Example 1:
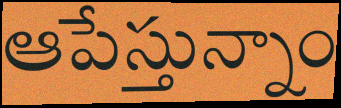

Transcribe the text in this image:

ఆపేస్తున్నాం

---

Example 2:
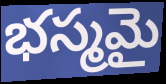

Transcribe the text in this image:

భస్మమై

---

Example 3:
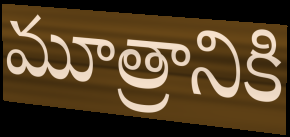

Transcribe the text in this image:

మూత్రానికి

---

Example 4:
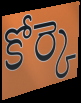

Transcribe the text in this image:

కోర్కె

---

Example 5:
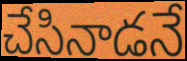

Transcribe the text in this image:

చేసినాడనే